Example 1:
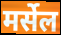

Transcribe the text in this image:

मर्सेल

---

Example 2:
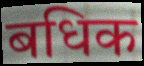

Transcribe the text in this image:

बधिक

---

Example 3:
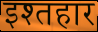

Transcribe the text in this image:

इश्तहार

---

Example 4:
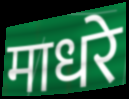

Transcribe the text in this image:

माधरे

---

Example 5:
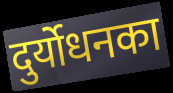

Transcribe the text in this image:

दुर्योधनका